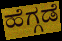
ಹೆಗ್ಗಡೆ